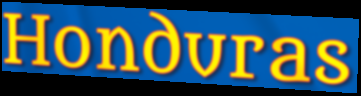
Honduras